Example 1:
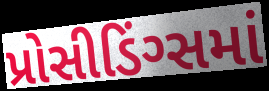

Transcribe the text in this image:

પ્રોસીડિંગ્સમાં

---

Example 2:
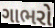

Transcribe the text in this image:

ગાભરો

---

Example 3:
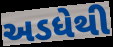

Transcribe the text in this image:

અડધેથી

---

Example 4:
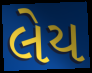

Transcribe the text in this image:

લેય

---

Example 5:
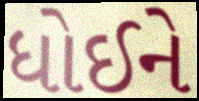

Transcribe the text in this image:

ધોઈને